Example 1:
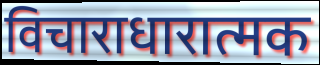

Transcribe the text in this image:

विचाराधारात्मक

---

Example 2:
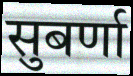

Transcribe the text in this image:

सुबर्णा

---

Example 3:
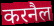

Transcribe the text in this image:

करनैल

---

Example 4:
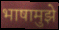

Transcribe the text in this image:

भाषामुझे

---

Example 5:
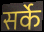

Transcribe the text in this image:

सर्के